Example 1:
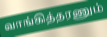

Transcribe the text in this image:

வாங்கித்தரணும்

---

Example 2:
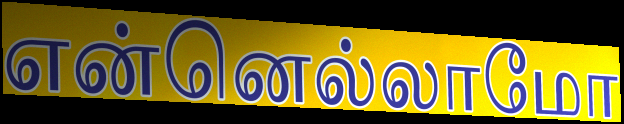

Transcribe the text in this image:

என்னெல்லாமோ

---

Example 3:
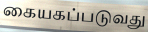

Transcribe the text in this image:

கையகப்படுவது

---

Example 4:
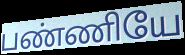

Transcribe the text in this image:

பண்ணியே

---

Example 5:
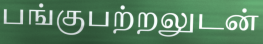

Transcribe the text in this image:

பங்குபற்றலுடன்